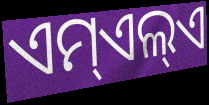
ଏମ୍ଏଲ୍ଏ